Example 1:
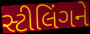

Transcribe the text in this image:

સ્ટીલિંગને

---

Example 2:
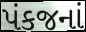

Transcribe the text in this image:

પંકજનાં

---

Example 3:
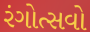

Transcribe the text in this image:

રંગોત્સવો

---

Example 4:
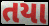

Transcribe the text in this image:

તયા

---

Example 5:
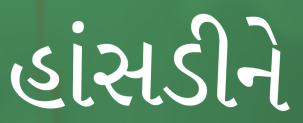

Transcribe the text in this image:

હાંસડીને